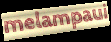
melampaui